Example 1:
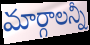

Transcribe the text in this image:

మార్గాలన్నీ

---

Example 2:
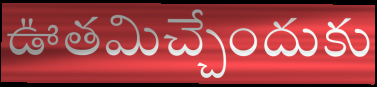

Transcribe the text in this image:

ఊతమిచ్చేందుకు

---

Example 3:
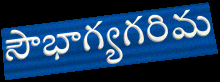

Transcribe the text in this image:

సౌభాగ్యగరిమ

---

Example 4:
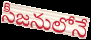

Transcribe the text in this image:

సీజనులోనే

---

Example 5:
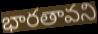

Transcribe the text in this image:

భారతావని